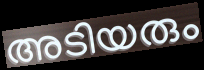
അടിയരും